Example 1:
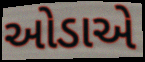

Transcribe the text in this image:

ઓડાએ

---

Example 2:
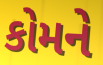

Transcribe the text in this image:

કોમને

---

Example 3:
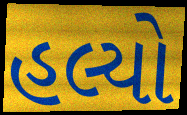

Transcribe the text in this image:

હલ્યો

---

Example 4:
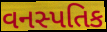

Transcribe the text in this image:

વનસ્પતિક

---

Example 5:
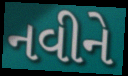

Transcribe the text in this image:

નવીને